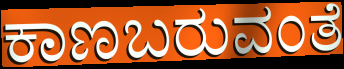
ಕಾಣಬರುವಂತೆ